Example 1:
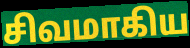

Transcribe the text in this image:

சிவமாகிய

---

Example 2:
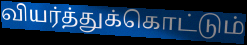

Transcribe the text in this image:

வியர்த்துக்கொட்டும்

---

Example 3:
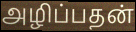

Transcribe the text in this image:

அழிப்பதன்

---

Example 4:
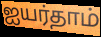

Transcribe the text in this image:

ஐயர்தாம்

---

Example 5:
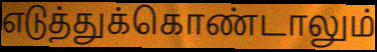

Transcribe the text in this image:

எடுத்துக்கொண்டாலும்